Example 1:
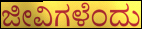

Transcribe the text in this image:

ಜೀವಿಗಳೆಂದು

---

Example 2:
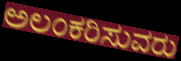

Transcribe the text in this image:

ಅಲಂಕರಿಸುವರು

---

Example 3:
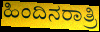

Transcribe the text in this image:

ಹಿಂದಿನರಾತ್ರಿ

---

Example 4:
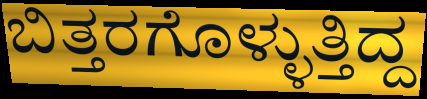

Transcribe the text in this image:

ಬಿತ್ತರಗೊಳ್ಳುತ್ತಿದ್ದ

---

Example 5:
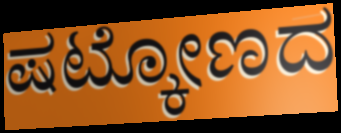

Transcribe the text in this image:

ಷಟ್ಕೋಣದ